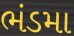
ભંડમા